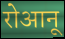
रोआनू